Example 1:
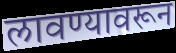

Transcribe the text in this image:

लावण्यावरून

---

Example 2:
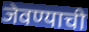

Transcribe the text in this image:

जेवण्याची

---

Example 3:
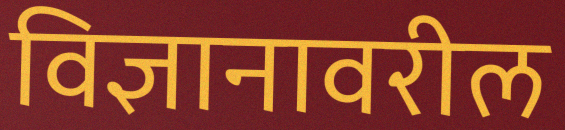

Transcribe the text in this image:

विज्ञानावरील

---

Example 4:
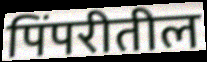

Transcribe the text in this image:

पिंपरीतील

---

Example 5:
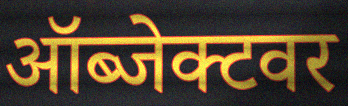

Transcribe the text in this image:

ऑब्जेक्टवर